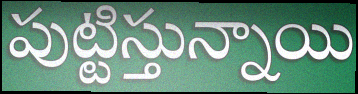
పుట్టిస్తున్నాయి